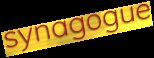
synagogue